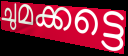
ചുമക്കട്ടെ